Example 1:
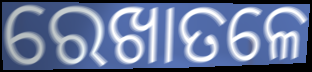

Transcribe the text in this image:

ରେଖାତଳେ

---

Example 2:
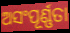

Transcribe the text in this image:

ଅସଂପୂର୍ଣ୍ଣତା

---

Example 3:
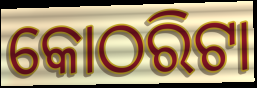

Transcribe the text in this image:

କୋଠରିଟା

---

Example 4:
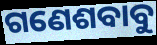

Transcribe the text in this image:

ଗଣେଶବାବୁ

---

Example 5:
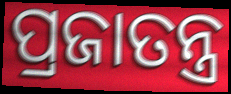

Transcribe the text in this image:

ପ୍ରଜାତନ୍ତ୍ର